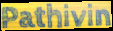
Pathivin